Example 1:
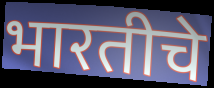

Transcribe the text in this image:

भारतीचे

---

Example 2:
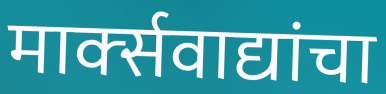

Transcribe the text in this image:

मार्क्‍सवाद्यांचा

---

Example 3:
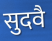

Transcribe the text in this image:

सुदवै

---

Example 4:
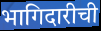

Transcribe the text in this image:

भागिदारीची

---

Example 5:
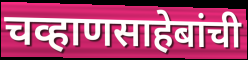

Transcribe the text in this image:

चव्हाणसाहेबांची